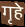
गृहे